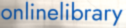
onlinelibrary